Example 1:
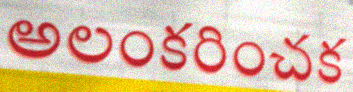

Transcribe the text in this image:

అలంకరించక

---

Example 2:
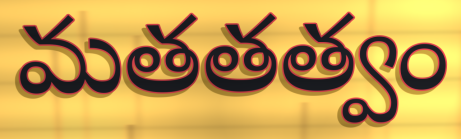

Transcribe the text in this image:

మతతత్వం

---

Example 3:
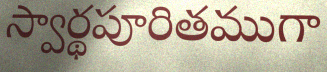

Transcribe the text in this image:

స్వార్థపూరితముగా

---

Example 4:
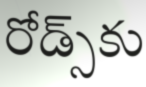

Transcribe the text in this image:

రోడ్స్‌కు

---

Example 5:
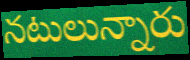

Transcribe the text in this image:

నటులున్నారు